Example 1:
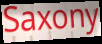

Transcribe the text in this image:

Saxony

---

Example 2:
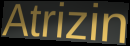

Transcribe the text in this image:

Atrizin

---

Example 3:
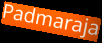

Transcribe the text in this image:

Padmaraja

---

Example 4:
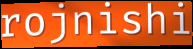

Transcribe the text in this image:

rojnishi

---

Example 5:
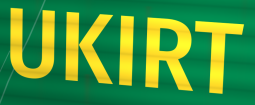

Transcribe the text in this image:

UKIRT